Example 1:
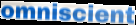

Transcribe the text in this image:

omniscient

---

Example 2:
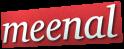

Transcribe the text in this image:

meenal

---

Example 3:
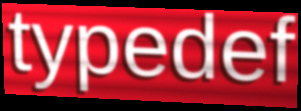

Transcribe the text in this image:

typedef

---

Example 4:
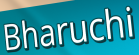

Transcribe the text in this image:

Bharuchi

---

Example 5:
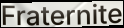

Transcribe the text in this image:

Fraternite